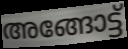
അങ്ങോട്ട്